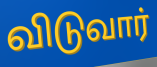
விடுவார்